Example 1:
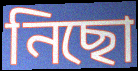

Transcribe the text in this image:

নিছো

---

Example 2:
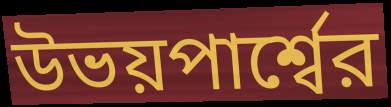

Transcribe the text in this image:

উভয়পার্শ্বের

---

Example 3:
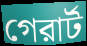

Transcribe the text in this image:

গেরার্ট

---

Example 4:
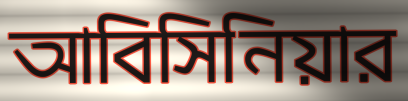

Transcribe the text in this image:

আবিসিনিয়ার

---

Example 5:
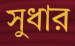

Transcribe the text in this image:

সুধার